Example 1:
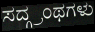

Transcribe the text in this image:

ಸದ್ಗ್ರಂಥಗಳು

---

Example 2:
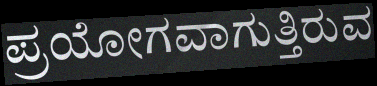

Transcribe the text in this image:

ಪ್ರಯೋಗವಾಗುತ್ತಿರುವ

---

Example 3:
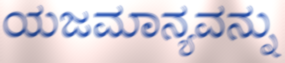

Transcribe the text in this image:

ಯಜಮಾನ್ಯವನ್ನು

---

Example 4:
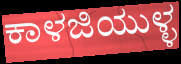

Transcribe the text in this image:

ಕಾಳಜಿಯುಳ್ಳ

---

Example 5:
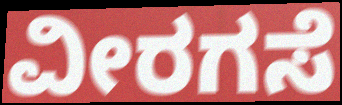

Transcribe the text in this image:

ವೀರಗಸೆ